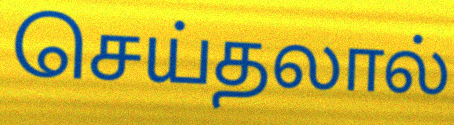
செய்தலால்